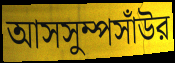
আসসুম্পসাঁউর